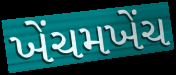
ખેંચમખેંચ